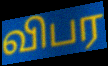
விபர